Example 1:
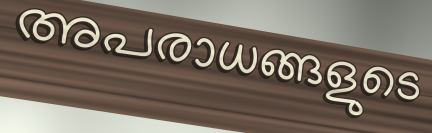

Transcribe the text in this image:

അപരാധങ്ങളുടെ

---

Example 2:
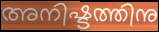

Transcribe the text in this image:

അനിഷ്ടത്തിനു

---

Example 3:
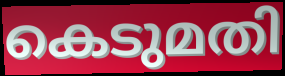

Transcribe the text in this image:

കെടുമതി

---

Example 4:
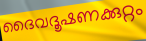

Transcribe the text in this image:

ദൈവദൂഷണക്കുറ്റം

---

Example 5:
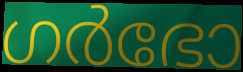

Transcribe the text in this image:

ഗർഭോ